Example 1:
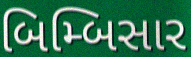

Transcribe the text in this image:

બિમ્બિસાર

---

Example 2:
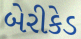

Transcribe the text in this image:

બેરીકેડ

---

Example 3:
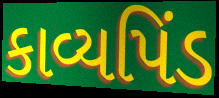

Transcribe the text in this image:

કાવ્યપિંડ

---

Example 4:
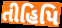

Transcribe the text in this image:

તીહિપિ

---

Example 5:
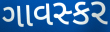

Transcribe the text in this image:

ગાવસ્કર